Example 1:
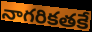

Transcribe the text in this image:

నాగరికతకే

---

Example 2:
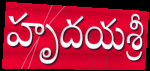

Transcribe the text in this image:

హృదయశ్రీ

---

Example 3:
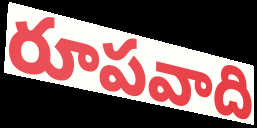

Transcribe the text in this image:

రూపవాది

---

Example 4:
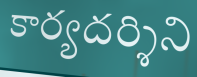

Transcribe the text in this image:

కార్యదర్శిని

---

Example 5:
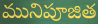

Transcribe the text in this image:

మునిపూజిత